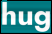
hug